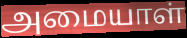
அமையாள்